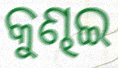
କୁଣ୍ଢଇ